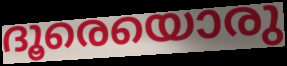
ദൂരെയൊരു